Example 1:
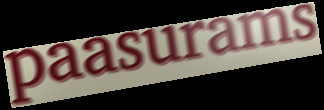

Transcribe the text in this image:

paasurams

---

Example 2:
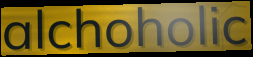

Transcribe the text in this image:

alchoholic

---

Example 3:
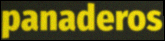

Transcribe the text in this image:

panaderos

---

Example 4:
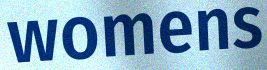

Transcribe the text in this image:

womens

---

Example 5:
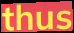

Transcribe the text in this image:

thus